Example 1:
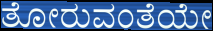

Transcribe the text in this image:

ತೋರುವಂತೆಯೇ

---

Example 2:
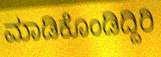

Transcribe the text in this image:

ಮಾಡಿಕೊಂಡಿದ್ದಿರಿ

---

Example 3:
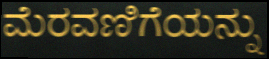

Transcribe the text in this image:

ಮೆರವಣಿಗೆಯನ್ನು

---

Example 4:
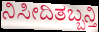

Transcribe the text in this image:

ನಿಸೀದಿತಬ್ಬನ್ತಿ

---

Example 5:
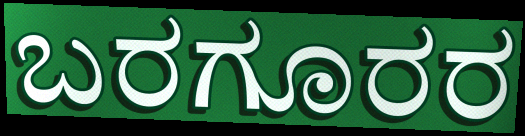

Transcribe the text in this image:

ಬರಗೂರರ